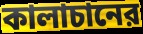
কালাচানের